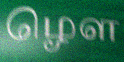
ழௌ